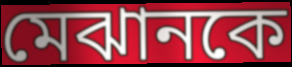
মেঝানকে